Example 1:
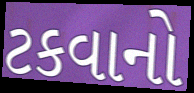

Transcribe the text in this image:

ટકવાનો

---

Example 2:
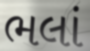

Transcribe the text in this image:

ભલાં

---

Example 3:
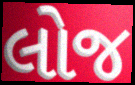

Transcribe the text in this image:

લોજ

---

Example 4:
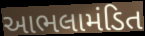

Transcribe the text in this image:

આભલામંડિત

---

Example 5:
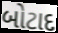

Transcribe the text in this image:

બોટાદ